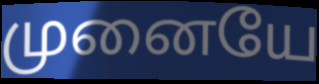
முனையே